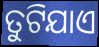
ତୁଟିଯାଏ